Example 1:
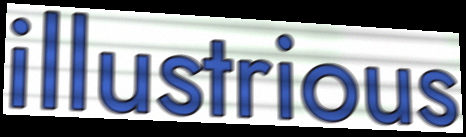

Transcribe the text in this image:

illustrious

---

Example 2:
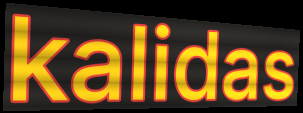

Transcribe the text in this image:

kalidas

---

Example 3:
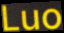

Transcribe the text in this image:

Luo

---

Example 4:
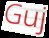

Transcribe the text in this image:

Guj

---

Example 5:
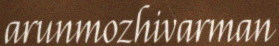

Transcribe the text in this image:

arunmozhivarman